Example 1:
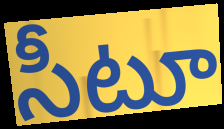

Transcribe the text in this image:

సీటూ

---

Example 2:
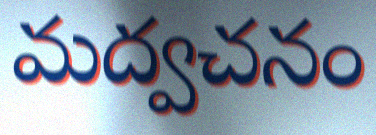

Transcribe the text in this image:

మద్వచనం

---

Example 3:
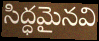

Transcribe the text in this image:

సిద్ధమైనవి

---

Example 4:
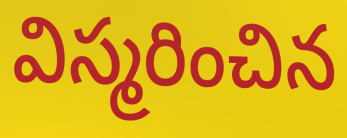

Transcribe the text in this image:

విస్మరించిన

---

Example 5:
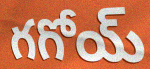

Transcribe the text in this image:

గగోయ్